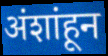
अंशांहून